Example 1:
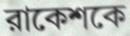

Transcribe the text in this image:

রাকেশকে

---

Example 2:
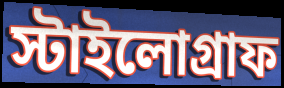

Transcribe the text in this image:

স্টাইলোগ্রাফ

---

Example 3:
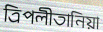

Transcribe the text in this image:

ত্রিপলীতানিয়া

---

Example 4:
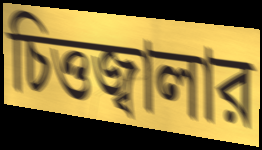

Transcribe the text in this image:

চিত্তজ্বালার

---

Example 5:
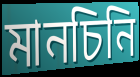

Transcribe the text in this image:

মানচিনি